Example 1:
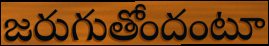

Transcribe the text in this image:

జరుగుతోందంటూ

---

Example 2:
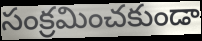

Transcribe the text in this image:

సంక్రమించకుండా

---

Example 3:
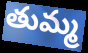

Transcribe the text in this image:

తుమ్మ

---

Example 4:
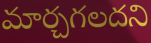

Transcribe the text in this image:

మార్చగలదని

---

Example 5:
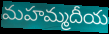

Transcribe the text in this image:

మహమ్మదీయ